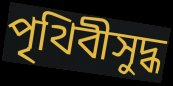
পৃথিবীসুদ্ধ